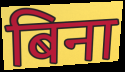
बिना